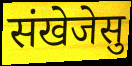
संखेजेसु